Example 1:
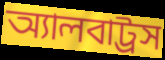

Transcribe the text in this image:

অ্যালবাট্রস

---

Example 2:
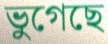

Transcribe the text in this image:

ভুগেছে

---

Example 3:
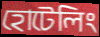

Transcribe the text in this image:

হোটেলিং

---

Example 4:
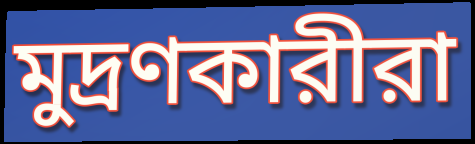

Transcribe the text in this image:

মুদ্রণকারীরা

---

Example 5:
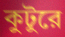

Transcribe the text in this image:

কুটুরে